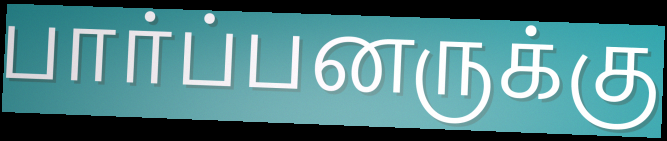
பார்ப்பனருக்கு